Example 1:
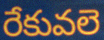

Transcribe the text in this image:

రేకువలె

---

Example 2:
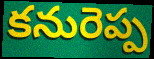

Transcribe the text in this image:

కనురెప్ప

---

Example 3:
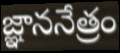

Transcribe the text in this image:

జ్ఞాననేత్రం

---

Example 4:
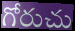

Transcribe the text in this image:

గోరుచు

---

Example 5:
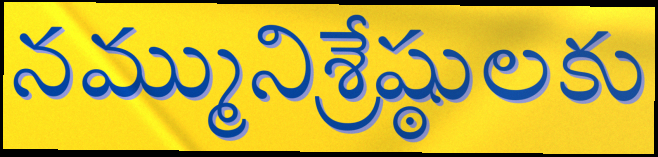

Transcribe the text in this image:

నమ్మునిశ్రేష్ఠులకు